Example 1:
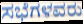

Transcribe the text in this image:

ಸಭೆಗಳವರು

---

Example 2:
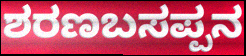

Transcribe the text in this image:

ಶರಣಬಸಪ್ಪನ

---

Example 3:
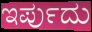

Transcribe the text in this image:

ಇರ್ಪುದು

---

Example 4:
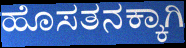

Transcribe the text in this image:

ಹೊಸತನಕ್ಕಾಗಿ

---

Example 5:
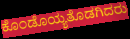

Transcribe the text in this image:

ಕೊಂಡೊಯ್ಯತೊಡಗಿದರು